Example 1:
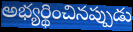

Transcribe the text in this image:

అభ్యర్థించినప్పుడు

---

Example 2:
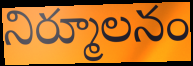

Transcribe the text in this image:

నిర్మూలనం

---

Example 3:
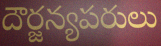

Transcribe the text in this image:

దౌర్జన్యపరులు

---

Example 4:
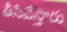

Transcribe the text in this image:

తీసివేస్తారు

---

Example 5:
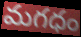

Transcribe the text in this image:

మగధం